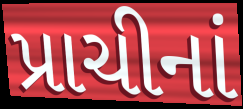
પ્રાચીનાં